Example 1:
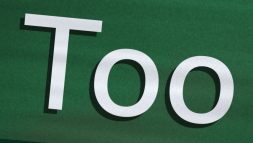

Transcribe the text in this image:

Too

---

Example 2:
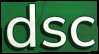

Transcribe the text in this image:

dsc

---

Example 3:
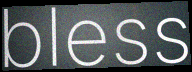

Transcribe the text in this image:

bless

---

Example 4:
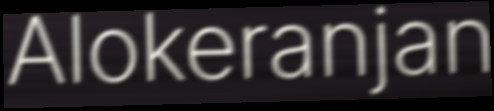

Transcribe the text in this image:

Alokeranjan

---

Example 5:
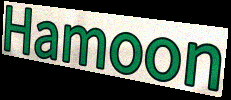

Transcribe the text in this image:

Hamoon